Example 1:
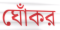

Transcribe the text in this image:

ঘোঁকর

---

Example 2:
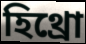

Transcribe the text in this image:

হিথ্রো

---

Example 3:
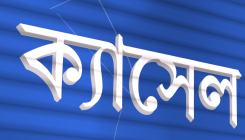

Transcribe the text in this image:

ক্যাসেল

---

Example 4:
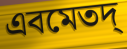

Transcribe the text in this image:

এবমেতদ্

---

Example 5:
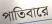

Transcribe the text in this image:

পাতিবারে